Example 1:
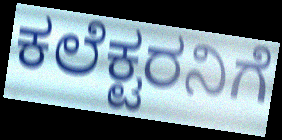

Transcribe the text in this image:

ಕಲೆಕ್ಟರನಿಗೆ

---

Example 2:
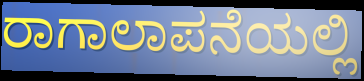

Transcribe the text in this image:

ರಾಗಾಲಾಪನೆಯಲ್ಲಿ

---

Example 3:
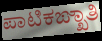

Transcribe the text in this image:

ಪಾಟಿಕಙ್ಖಾತಿ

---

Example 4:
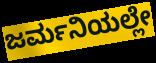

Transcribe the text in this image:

ಜರ್ಮನಿಯಲ್ಲೇ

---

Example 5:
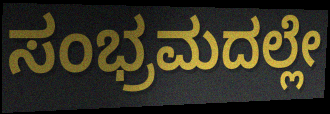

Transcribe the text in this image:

ಸಂಭ್ರಮದಲ್ಲೇ